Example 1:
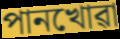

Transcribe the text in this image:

পানখোৱা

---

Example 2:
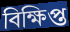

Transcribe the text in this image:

বিক্ষিপ্ত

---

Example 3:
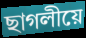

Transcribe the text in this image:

ছাগলীয়ে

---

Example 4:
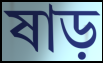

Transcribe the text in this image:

ষাড়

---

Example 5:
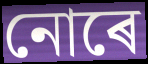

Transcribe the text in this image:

নোৰে